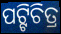
ପଟ୍ଟିଚିତ୍ର